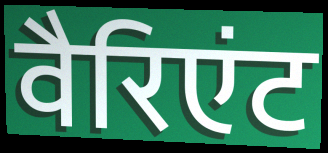
वैरिएंट